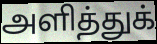
அளித்துக்